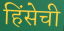
हिंसेची